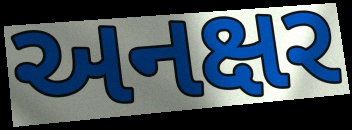
અનક્ષર